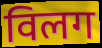
विलग